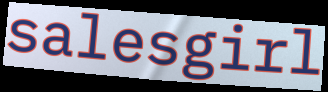
salesgirl